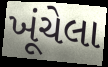
ખૂંચેલા